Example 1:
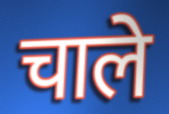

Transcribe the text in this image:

चाले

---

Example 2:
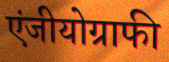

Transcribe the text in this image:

एंजीयोग्राफी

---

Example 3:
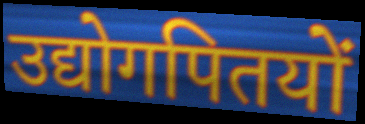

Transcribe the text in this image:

उद्योगपितयों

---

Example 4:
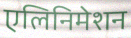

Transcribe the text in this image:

एलिनिमेशन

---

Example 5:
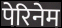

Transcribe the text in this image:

पेरिनेम